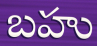
బహు